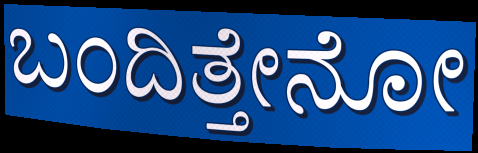
ಬಂದಿತ್ತೇನೋ